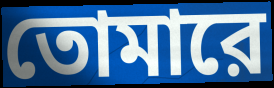
তোমারে